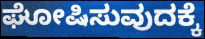
ಘೋಷಿಸುವುದಕ್ಕೆ